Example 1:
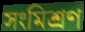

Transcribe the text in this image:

সংমিশ্ৰণ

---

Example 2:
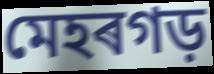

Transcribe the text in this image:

মেহৰগড়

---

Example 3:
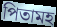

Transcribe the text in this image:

পিতামহ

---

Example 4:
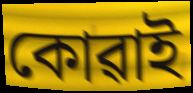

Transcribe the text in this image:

কোৱাই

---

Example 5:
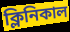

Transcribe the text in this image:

ক্লিনিকাল